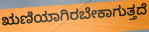
ಋಣಿಯಾಗಿರಬೇಕಾಗುತ್ತದೆ